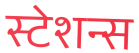
स्टेशन्स